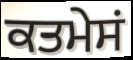
ਕਤਮੇਸਂ